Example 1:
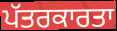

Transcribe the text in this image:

ਪੱਤਰਕਾਰਤਾ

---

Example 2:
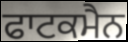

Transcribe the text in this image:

ਫਾਟਕਮੈਨ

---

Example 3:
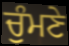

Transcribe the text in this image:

ਚੁੰਮਣੇ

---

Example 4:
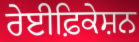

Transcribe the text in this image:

ਰੇਈਫ਼ਿਕੇਸ਼ਨ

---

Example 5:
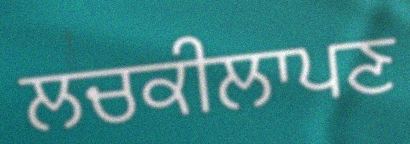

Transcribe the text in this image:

ਲਚਕੀਲਾਪਣ